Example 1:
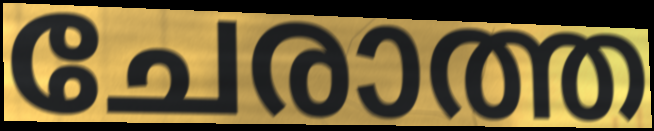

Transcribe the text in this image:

ചേരാത്ത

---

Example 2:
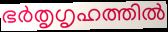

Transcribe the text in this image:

ഭർതൃഗൃഹത്തിൽ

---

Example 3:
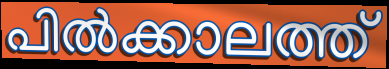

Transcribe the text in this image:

പിൽക്കാലത്ത്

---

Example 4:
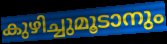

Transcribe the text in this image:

കുഴിച്ചുമൂടാനും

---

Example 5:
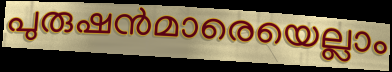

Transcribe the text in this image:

പുരുഷൻമാരെയെല്ലാം